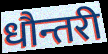
धौन्तरी